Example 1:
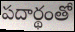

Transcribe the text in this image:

పదార్థంతో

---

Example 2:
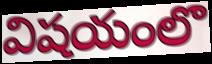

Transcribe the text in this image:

విషయంలొ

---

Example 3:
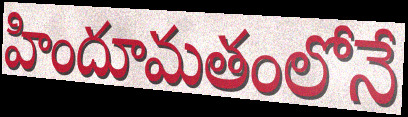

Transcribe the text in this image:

హిందూమతంలోనే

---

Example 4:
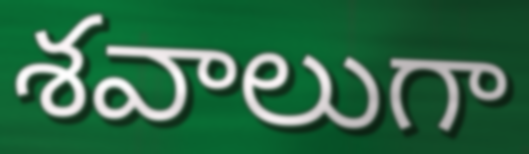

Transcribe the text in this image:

శవాలుగా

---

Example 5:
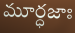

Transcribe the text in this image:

మూర్ధజాః